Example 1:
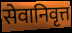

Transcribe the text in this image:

सेवानिवृत्त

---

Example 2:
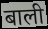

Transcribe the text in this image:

बाली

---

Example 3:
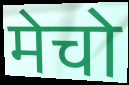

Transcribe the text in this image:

मेचो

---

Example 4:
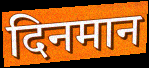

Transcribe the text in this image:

दिनमान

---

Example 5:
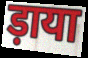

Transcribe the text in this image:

ड़ाया